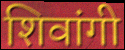
शिवांगी